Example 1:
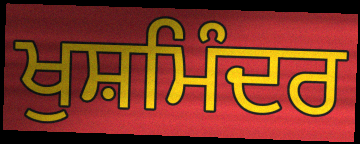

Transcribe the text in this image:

ਖੁਸ਼ਮਿੰਦਰ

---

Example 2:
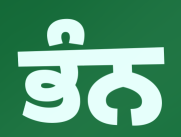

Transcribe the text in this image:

ਭੰਨ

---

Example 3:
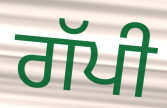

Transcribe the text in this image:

ਗੱਪੀ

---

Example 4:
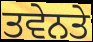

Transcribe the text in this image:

ਤਵੇਨਤੇ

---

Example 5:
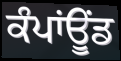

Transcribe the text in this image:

ਕੰਪਾਂਊਂਡ